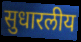
सुधारलीय